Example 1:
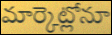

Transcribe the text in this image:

మార్కెట్లోనూ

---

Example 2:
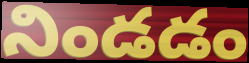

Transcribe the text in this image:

నిండడం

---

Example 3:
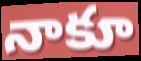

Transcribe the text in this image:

నాకూ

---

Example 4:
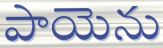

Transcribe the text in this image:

పాయెను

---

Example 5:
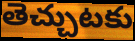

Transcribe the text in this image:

తెచ్చుటకు